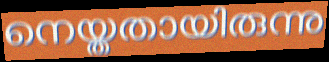
നെയ്തതായിരുന്നു